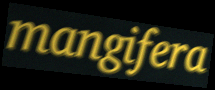
mangifera